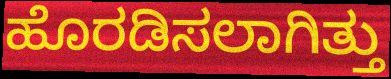
ಹೊರಡಿಸಲಾಗಿತ್ತು